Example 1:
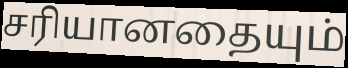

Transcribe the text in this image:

சரியானதையும்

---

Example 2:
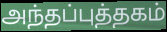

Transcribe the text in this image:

அந்தப்புத்தகம்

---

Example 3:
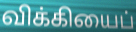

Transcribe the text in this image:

விக்கியைப்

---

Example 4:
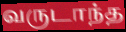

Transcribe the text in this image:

வருடாந்த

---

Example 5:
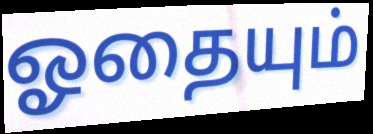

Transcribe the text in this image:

ஓதையும்